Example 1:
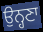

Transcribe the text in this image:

ਉਨ੍ਹਣਾ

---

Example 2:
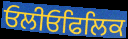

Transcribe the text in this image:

ਓਲੀਓਫਿਲਿਕ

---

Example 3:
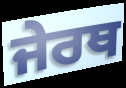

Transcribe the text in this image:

ਜੇਰਥ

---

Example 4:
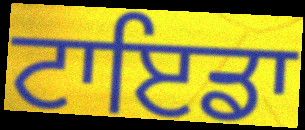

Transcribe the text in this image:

ਟਾਇਡਾ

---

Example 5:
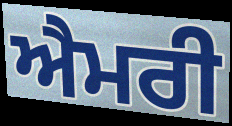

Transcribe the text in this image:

ਐਮਰੀ